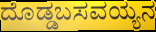
ದೊಡ್ಡಬಸವಯ್ಯನ